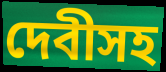
দেবীসহ